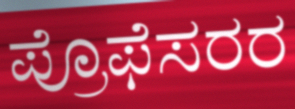
ಪ್ರೊಫೆಸರರ